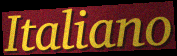
Italiano